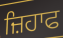
ਜ਼ਿਹਾਫ